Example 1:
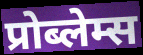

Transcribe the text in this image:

प्रोब्लेम्स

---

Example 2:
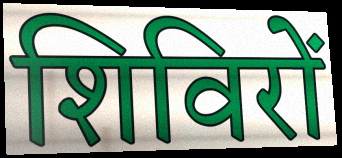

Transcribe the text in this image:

शिविरों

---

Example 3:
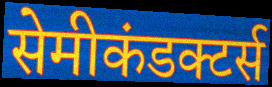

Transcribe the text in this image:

सेमीकंडक्टर्स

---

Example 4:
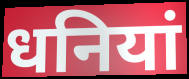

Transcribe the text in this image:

धनियां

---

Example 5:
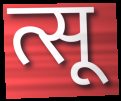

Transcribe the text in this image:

त्सू